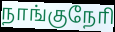
நாங்குநேரி